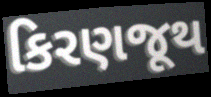
કિરણજૂથ